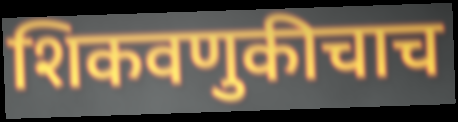
शिकवणुकीचाच